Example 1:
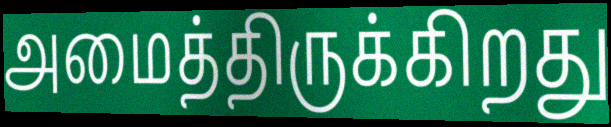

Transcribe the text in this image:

அமைத்திருக்கிறது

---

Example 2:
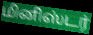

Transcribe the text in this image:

மினிஸ்டர்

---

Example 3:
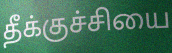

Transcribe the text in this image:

தீக்குச்சியை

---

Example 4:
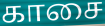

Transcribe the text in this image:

காசை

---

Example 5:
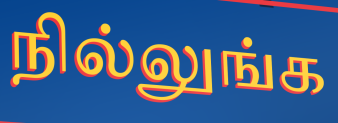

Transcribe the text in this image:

நில்லுங்க